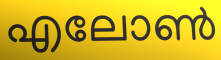
എലോൺ